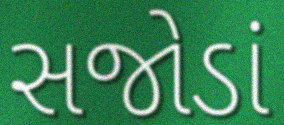
સજોડાં